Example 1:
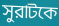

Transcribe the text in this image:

সুরাটকে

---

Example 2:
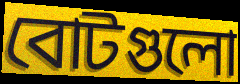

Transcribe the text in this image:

বোটগুলো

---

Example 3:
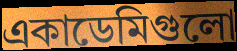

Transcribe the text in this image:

একাডেমিগুলো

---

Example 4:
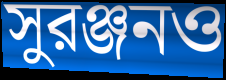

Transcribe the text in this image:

সুরঞ্জনও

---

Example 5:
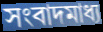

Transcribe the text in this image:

সংবাদমাধ্য